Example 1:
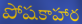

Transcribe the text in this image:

పోషకాహార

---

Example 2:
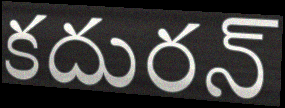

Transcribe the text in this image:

కదురన్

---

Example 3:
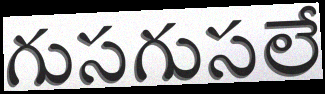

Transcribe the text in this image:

గుసగుసలే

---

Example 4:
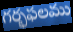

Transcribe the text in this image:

గర్భఫలము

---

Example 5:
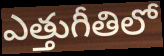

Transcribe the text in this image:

ఎత్తుగీతిలో